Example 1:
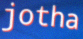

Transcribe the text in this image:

jotha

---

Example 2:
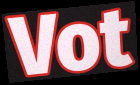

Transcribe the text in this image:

Vot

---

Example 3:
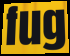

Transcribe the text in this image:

fug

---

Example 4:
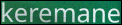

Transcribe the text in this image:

keremane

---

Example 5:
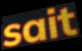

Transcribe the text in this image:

sait